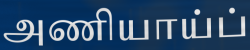
அணியாய்ப்